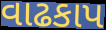
વાઢકાપ